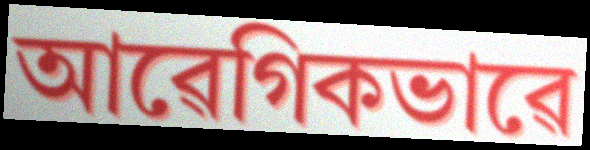
আৱেগিকভাৱে